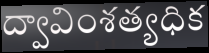
ద్వావింశత్యధిక